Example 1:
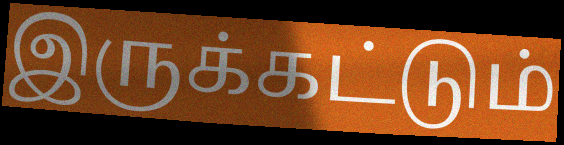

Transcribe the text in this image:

இருக்கட்டும்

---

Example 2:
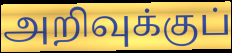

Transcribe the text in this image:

அறிவுக்குப்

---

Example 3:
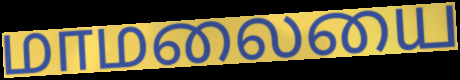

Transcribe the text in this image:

மாமலையை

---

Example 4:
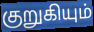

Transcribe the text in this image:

குறுகியும்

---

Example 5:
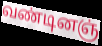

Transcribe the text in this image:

வண்டினஞ்